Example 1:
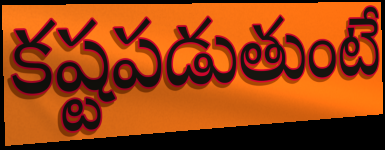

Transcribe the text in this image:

కష్టపడుతుంటే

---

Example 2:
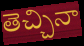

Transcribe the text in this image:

తెచ్చినా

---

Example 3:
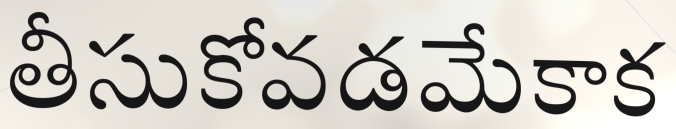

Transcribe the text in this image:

తీసుకోవడమేకాక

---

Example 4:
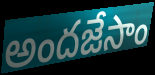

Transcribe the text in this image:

అందజేసాం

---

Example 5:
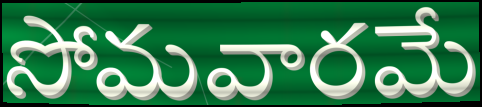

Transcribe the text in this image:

సోమవారమే